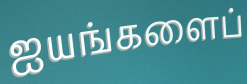
ஐயங்களைப்